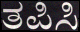
ತಪಿಸಿ